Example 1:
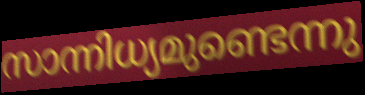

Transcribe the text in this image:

സാന്നിധ്യമുണ്ടെന്നു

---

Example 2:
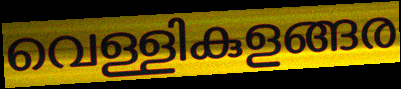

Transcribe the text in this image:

വെള്ളികുളങ്ങര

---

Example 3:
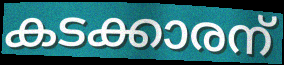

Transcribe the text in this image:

കടക്കാരന്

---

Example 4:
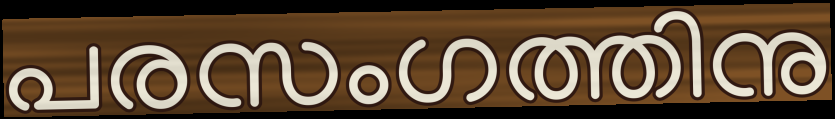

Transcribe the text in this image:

പരസംഗത്തിനു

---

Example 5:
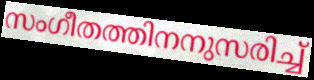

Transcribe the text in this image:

സംഗീതത്തിനനുസരിച്ച്